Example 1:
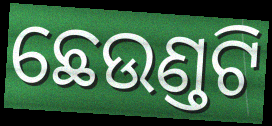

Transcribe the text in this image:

ଛେଉଣ୍ଡଟି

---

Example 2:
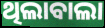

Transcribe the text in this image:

ଥିଲାବାଲା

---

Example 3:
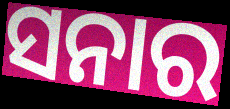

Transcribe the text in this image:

ସନାର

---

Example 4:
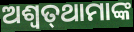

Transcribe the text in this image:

ଅଶ୍ୱତ୍‌ଥାମାଙ୍କ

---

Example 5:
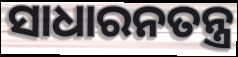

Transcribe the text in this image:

ସାଧାରନତନ୍ତ୍ର